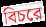
বিচরে